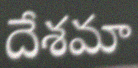
దేశమా